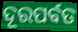
ଦୂରପର୍ବତ